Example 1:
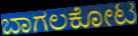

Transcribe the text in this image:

ಬಾಗಲಕೋಟ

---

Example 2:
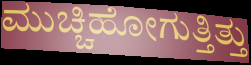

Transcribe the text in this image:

ಮುಚ್ಚಿಹೋಗುತ್ತಿತ್ತು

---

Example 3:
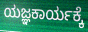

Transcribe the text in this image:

ಯಜ್ಞಕಾರ್ಯಕ್ಕೆ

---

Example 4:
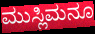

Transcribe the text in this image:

ಮುಸ್ಲಿಮನೂ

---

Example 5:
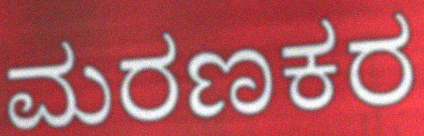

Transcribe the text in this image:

ಮರಣಕರ